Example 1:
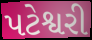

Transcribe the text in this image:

પટેશ્વરી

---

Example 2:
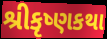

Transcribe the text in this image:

શ્રીકૃષ્ણકથા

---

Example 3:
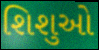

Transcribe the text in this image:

શિશુઓ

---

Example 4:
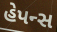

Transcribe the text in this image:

હેપન્સ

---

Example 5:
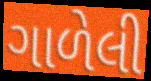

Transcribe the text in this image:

ગાળેલી